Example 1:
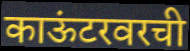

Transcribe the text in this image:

काऊंटरवरची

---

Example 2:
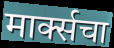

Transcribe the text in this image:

मार्क्सचा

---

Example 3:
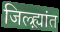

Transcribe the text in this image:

जिल्ह्य़ांत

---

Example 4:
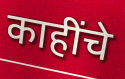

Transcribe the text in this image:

काहींचे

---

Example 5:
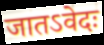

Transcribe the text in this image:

जातऽवेदः